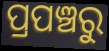
ପ୍ରପଞ୍ଚରୁ